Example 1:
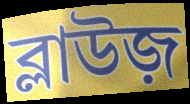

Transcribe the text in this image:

ব্লাউজ়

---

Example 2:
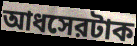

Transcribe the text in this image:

আধসেরটাক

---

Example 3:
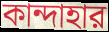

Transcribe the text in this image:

কান্দাহার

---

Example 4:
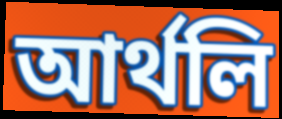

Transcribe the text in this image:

আর্থলি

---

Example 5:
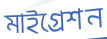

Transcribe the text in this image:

মাইগ্রেশন